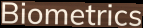
Biometrics